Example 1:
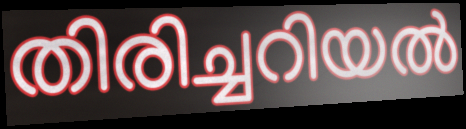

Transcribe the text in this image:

തിരിച്ചറിയൽ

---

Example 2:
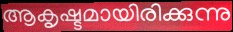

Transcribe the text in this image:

ആകൃഷ്ടമായിരിക്കുന്നു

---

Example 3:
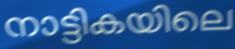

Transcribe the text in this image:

നാട്ടികയിലെ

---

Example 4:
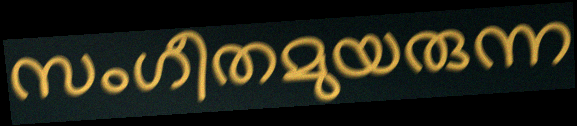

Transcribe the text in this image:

സംഗീതമുയരുന്ന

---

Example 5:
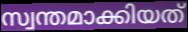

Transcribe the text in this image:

സ്വന്തമാക്കിയത്